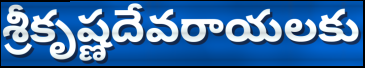
శ్రీకృష్ణదేవరాయలకు